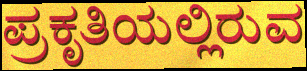
ಪ್ರಕೃತಿಯಲ್ಲಿರುವ